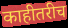
काहीतरीच